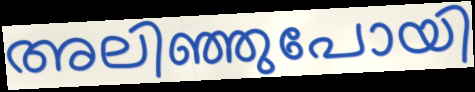
അലിഞ്ഞുപോയി